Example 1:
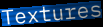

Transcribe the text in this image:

Textures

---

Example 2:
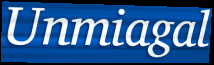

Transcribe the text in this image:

Unmiagal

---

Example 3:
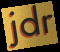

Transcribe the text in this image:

jdr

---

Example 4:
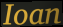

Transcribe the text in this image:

Ioan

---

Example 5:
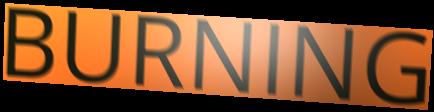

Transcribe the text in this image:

BURNING